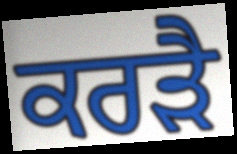
ਕਰੜੈ